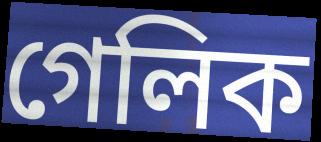
গেলিক